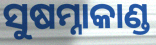
ସୁଷମ୍ନାକାଣ୍ଡ